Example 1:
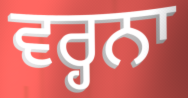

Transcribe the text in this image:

ਵਰ੍ਹਨਾ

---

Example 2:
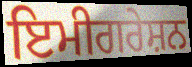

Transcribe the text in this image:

ਇਮੀਗਰੇਸ਼ਨ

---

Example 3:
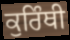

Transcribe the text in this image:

ਕੁਰਿੰਥੀ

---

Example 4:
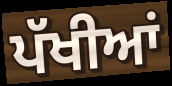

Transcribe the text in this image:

ਪੱਖੀਆਂ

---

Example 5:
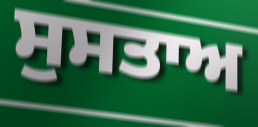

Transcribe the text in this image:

ਸੁਸਤਾਅ